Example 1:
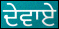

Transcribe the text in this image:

ਦੇਵਾਏ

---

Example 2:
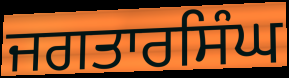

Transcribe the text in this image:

ਜਗਤਾਰਸਿੰਘ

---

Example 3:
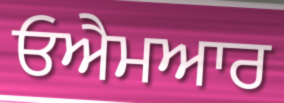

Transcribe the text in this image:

ਓਐਮਆਰ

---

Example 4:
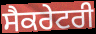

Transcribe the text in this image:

ਸੈਕਰੇਟਰੀ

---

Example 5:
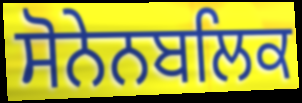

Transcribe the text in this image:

ਸੋਨੇਨਬਲਿਕ